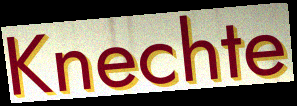
Knechte